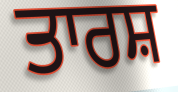
ਤਾਰਸ਼